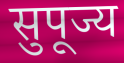
सुपूज्य